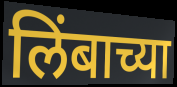
लिंबाच्या